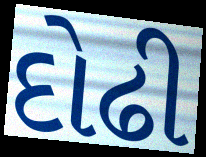
દોઢી